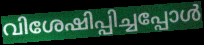
വിശേഷിപ്പിച്ചപ്പോൾ